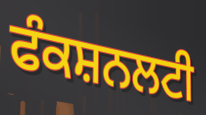
ਫੰਕਸ਼ਨਲਟੀ